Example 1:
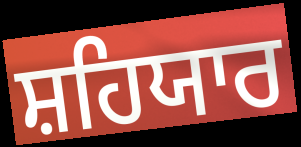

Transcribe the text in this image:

ਸ਼ਹਿਯਾਰ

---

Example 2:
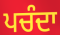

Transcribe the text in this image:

ਪਚੰਦਾ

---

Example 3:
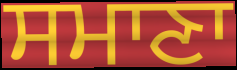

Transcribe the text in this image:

ਸਮਾਣਾ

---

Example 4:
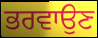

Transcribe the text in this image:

ਭਰਵਾਉਣ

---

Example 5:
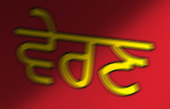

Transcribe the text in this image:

ਵੇਰਣ